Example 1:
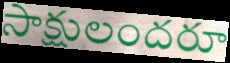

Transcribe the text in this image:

సాక్షులందరూ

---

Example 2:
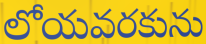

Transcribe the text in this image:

లోయవరకును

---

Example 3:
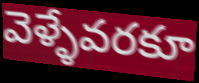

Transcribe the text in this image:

వెళ్ళేవరకూ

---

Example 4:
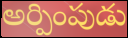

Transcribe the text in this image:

అర్పింపుడు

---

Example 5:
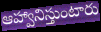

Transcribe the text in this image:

ఆహ్వానిస్తుంటారు